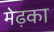
मेढ़का